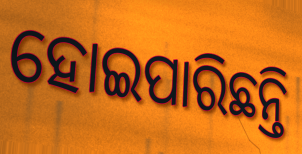
ହୋଇପାରିଛନ୍ତି